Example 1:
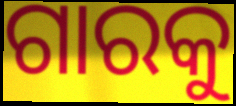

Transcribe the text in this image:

ଗାରକୁ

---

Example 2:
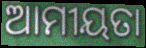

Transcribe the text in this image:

ଆମୀୟତା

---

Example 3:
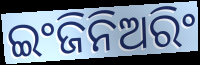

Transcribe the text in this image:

ଇଂଜିନିଅରିଂ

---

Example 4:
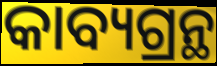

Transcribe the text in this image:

କାବ୍ୟଗ୍ରନ୍ଥ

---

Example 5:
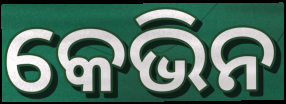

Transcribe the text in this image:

କେଭିନ